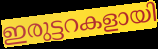
ഇരുട്ടറകളായി